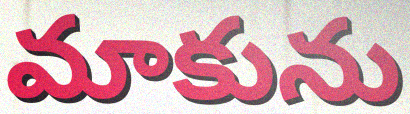
మాకును